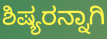
ಶಿಷ್ಯರನ್ನಾಗಿ